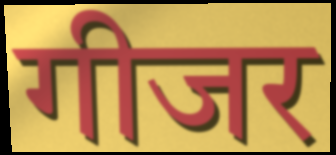
गीजर